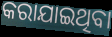
କରାଯାଇଥିବା